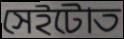
সেইটোত